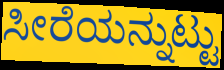
ಸೀರೆಯನ್ನುಟ್ಟು